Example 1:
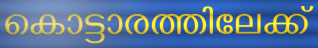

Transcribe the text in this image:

കൊട്ടാരത്തിലേക്ക്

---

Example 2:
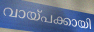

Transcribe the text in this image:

വായ്പക്കായി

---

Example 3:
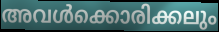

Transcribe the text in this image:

അവൾക്കൊരിക്കലും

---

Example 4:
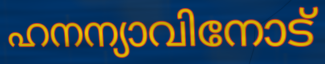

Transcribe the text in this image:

ഹനന്യാവിനോട്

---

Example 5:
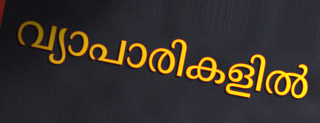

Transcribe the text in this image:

വ്യാപാരികളിൽ